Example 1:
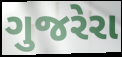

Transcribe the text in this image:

ગુજરેરા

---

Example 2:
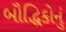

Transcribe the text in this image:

બૌદ્ધિકોનું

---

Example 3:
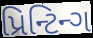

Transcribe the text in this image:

પ્રિન્ટિન્ગ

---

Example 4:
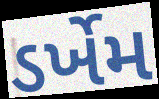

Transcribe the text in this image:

ડર્ખેમ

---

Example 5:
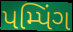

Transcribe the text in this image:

પમ્પિંગ